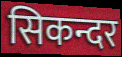
सिकन्दर